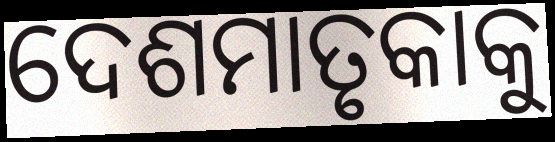
ଦେଶମାତୃକାକୁ